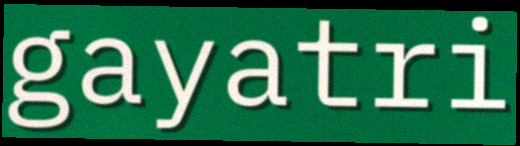
gayatri